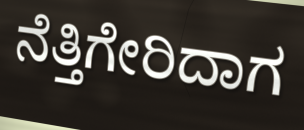
ನೆತ್ತಿಗೇರಿದಾಗ